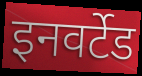
इनवर्टेड